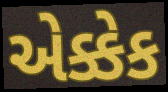
એક્કેક